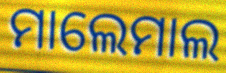
ମାଲେମାଲ